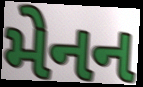
મેનન